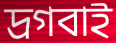
দ্রগবাই